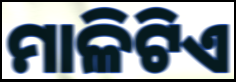
ମାଳିଟିଏ